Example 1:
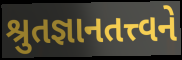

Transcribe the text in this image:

શ્રુતજ્ઞાનતત્ત્વને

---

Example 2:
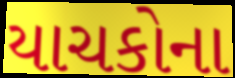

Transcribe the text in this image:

યાચકોના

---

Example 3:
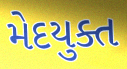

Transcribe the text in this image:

મેદયુક્ત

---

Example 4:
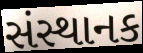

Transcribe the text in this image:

સંસ્થાનક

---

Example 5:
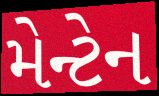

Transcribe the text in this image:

મેન્ટેન